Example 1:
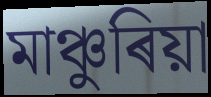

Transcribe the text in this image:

মাঞ্চুৰিয়া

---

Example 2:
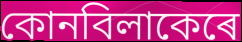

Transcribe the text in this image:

কোনবিলাকেৰে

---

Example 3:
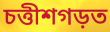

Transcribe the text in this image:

চত্তীশগড়ত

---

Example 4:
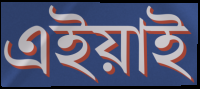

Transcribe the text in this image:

এইয়াই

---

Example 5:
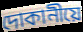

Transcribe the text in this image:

দোকানীয়ে